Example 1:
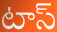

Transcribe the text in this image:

టాస్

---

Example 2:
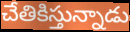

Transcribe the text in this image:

చేతికిస్తున్నాడు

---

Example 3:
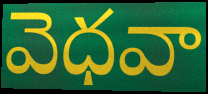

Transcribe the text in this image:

వెధవా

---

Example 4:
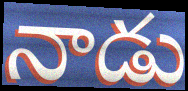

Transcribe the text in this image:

నాడు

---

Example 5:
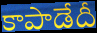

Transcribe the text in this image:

కాపాడేదీ